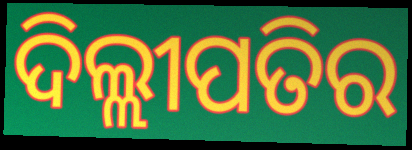
ଦିଲ୍ଲୀପତିର